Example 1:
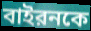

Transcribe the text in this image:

বাইরনকে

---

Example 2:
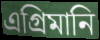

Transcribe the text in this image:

এগ্রিমানি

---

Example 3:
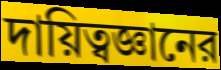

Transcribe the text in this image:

দায়িত্বজ্ঞানের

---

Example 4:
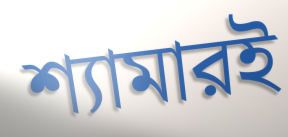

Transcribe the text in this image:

শ্যামারই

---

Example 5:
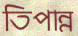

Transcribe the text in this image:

তিপান্ন